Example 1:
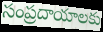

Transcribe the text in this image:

సంప్రదాయాలకు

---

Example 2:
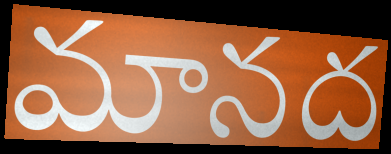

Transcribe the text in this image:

మానద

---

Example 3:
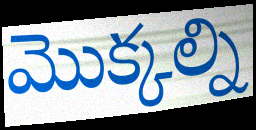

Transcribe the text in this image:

మొక్కల్ని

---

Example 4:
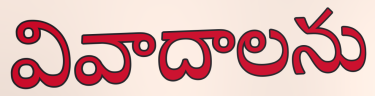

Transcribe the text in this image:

వివాదాలను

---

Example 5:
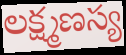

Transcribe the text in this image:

లక్ష్మణస్య